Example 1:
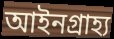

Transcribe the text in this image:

আইনগ্রাহ্য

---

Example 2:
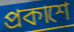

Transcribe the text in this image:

প্রকাশে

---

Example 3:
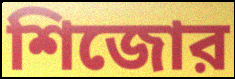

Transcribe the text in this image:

শিজোর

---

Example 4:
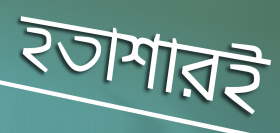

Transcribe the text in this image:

হতাশারই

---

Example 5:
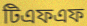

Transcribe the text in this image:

টিএফএফ